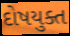
દોષયુક્ત